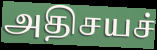
அதிசயச்